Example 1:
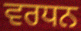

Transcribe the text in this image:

ਵਰਧਨ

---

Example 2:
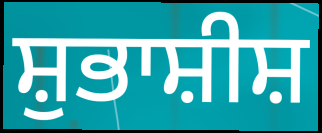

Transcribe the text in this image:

ਸ਼ੁਭਾਸ਼ੀਸ਼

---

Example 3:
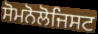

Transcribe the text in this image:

ਸੋਮਨੋਲੋਜਿਸਟ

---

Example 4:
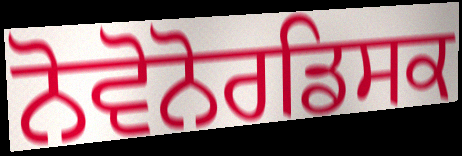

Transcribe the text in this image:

ਨੋਵੋਨੋਰਡਿਸਕ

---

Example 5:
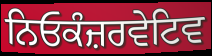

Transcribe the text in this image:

ਨਿਓਕੰਜ਼ਰਵੇਟਿਵ